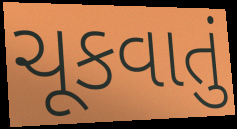
ચૂકવાતું